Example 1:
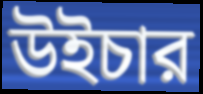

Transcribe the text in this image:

উইচার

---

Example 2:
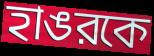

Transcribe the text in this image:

হাঙরকে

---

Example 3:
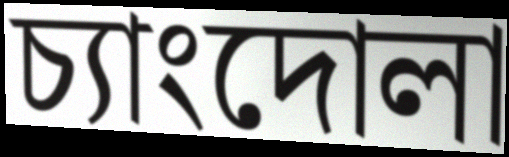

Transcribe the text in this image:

চ্যাংদোলা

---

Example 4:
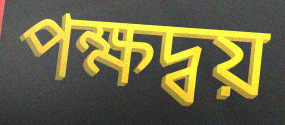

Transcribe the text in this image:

পক্ষদ্বয়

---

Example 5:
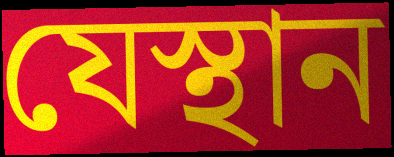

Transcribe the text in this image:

যেস্থান